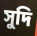
সুদি